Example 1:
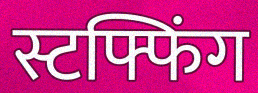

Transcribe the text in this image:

स्टफ्फिंग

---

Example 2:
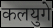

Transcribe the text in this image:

कलयुगे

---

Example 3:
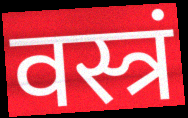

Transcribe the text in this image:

वस्त्रं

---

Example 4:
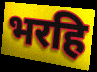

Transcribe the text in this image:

भरहि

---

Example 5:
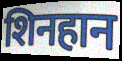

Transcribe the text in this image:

शिनहान